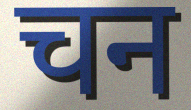
चन